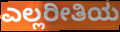
ಎಲ್ಲರೀತಿಯ